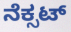
ನೆಕ್ಸಟ್